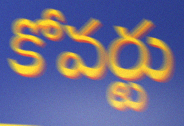
కోవర్టు